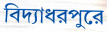
বিদ্যাধরপুরে